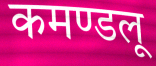
कमण्डलू